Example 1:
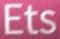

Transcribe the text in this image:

Ets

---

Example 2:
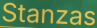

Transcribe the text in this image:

Stanzas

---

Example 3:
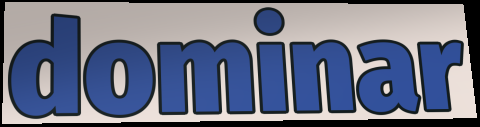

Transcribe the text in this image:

dominar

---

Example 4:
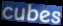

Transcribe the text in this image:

cubes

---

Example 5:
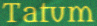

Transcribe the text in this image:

Tatum